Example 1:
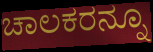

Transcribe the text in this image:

ಚಾಲಕರನ್ನೂ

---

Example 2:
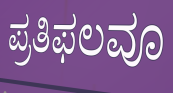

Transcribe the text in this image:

ಪ್ರತಿಫಲವೂ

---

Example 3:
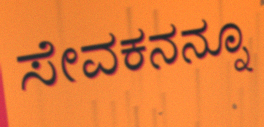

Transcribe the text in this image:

ಸೇವಕನನ್ನೂ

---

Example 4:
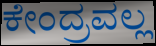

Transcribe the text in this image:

ಕೇಂದ್ರವಲ್ಲ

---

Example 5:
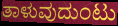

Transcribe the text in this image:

ತಾಳುವುದುಂಟು